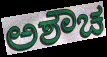
ಅಶೌಚ